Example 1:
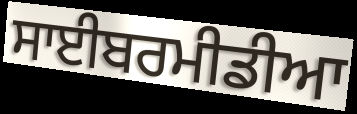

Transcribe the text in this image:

ਸਾਈਬਰਮੀਡੀਆ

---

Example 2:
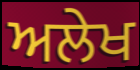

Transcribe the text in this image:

ਅਲੇਖ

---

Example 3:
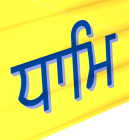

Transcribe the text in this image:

ਧਾਮਿ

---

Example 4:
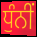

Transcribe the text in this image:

ਧੁੰਨੀਂ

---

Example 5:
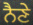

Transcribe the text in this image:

ਨੈਣੇ